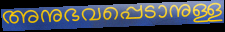
അനുഭവപ്പെടാനുള്ള